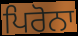
ਪਿਰੋਨਾ